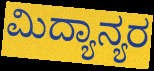
ಮಿದ್ಯಾನ್ಯರ